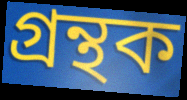
গ্ৰন্থক